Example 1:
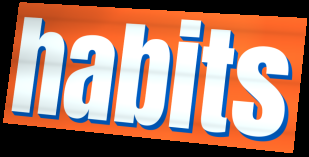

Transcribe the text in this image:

habits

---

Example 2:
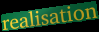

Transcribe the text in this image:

realisation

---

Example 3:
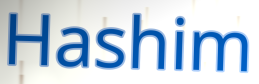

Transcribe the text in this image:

Hashim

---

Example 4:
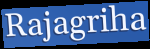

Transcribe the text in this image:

Rajagriha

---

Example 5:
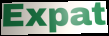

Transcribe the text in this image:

Expat